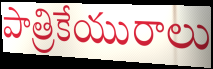
పాత్రికేయురాలు